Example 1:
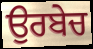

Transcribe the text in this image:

ਉਰਬੇਚ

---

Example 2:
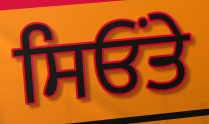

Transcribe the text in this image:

ਸਿਓਂਤੇ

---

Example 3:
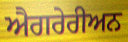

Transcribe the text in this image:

ਐਗਰੇਰੀਅਨ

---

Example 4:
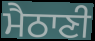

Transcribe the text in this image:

ਮੈਠਾਣੀ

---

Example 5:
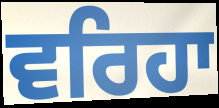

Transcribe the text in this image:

ਵਰਿਹਾ